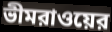
ভীমরাওয়ের